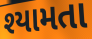
શ્યામતા